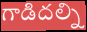
గాడిదల్ని